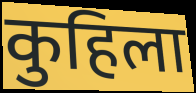
कुहिला